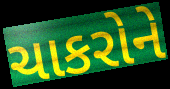
ચાકરોને